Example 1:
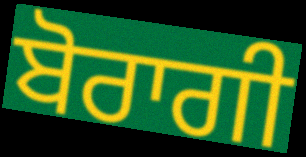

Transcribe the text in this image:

ਬੋਰਾਗੀ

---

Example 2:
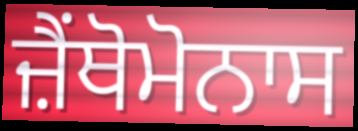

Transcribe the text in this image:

ਜ਼ੈਂਥੋਮੋਨਾਸ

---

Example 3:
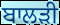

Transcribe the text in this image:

ਬਾਲੜੀ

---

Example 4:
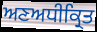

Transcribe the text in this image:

ਅਣਅਧੀਕ੍ਰਿਤ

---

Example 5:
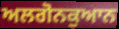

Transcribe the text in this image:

ਅਲਗੋਨਕੁਆਨ